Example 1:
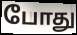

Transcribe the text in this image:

போது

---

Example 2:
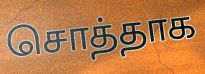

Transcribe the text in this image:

சொத்தாக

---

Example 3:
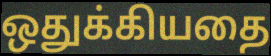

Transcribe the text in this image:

ஒதுக்கியதை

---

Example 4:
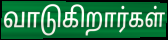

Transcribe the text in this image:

வாடுகிறார்கள்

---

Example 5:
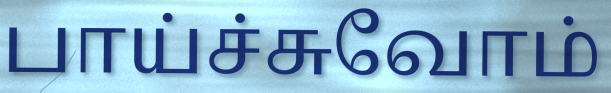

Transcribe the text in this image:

பாய்ச்சுவோம்